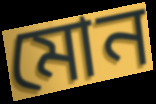
মোন